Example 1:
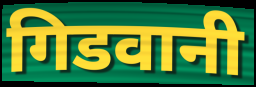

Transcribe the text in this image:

गिडवानी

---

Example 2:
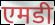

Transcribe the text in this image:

एमडी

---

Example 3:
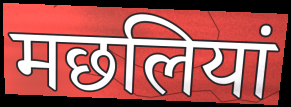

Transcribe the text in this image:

मछलियां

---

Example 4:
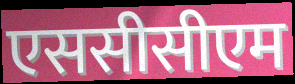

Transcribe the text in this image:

एससीसीएम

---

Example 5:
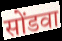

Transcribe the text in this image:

सोंडवा